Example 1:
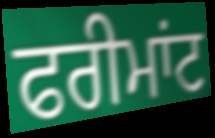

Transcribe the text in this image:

ਫਰੀਮਾਂਟ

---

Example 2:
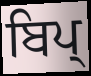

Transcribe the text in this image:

ਬਿਪ੍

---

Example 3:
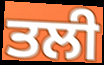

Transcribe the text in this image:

ਤਲੀ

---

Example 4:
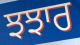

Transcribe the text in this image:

ਝਝਾਰ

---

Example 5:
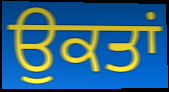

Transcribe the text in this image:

ਉਕਤਾਂ